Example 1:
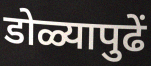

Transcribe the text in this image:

डोळ्यापुढें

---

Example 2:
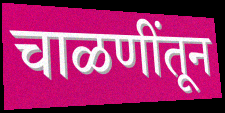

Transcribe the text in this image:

चाळणींतून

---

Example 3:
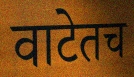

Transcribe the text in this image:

वाटेतच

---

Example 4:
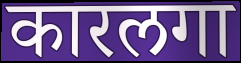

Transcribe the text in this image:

कारलगा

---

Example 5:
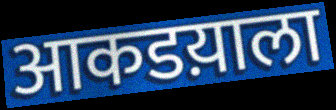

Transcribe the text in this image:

आकडय़ाला